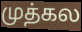
முத்கல